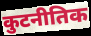
कुटनीतिक